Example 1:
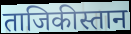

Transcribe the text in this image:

ताजिकीस्तान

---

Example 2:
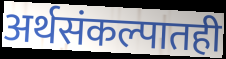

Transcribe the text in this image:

अर्थसंकल्पातही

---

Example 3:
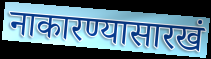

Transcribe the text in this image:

नाकारण्यासारखं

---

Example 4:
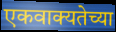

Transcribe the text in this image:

एकवाक्यतेच्या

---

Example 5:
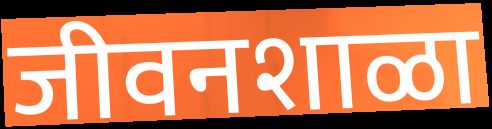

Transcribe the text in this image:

जीवनशाळा